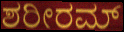
ಶರೀರಮ್